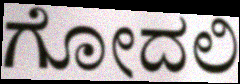
ಗೋದಲಿ